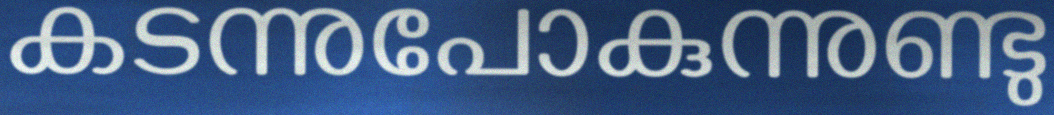
കടന്നുപോകുന്നുണ്ടു